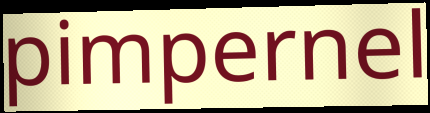
pimpernel